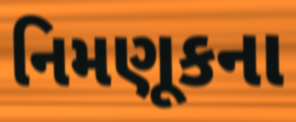
નિમણૂકના